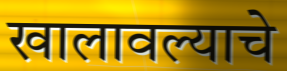
खालावल्याचे